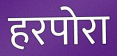
हरपोरा